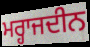
ਮਰ੍ਹਾਜਦੀਨ